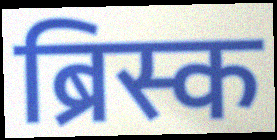
ब्रिस्क